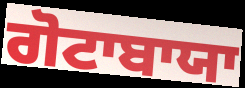
ਗੋਟਾਬਾਯਾ